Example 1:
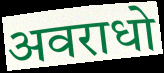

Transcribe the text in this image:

अवराधो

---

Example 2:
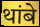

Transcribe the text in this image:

थांबे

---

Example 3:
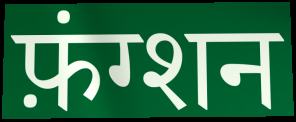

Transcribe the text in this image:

फ़ंग्शन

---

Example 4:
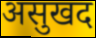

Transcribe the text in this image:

असुखद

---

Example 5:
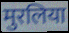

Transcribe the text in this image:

मुरलिया